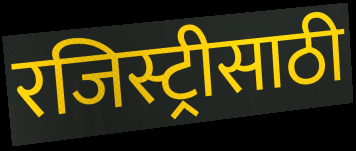
रजिस्ट्रीसाठी